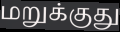
மறுக்குது